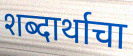
शब्दार्थाचा